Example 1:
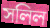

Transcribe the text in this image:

সলিল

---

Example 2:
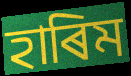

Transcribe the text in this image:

হাৰিম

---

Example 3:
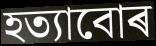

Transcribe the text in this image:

হত্যাবোৰ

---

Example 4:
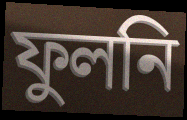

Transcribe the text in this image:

ফুলনি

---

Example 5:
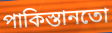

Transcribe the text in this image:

পাকিস্তানতো